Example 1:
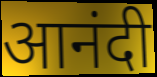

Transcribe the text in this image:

आनंदी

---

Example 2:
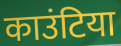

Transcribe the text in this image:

काउंटिया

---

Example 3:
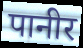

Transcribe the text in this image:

पानीर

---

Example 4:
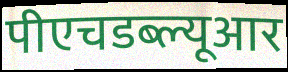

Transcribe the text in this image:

पीएचडब्ल्यूआर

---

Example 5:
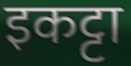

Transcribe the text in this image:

इकट्टा